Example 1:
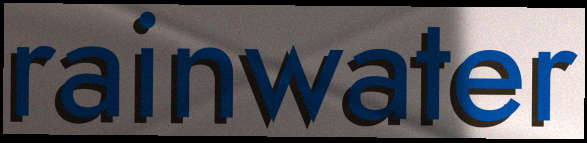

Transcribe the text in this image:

rainwater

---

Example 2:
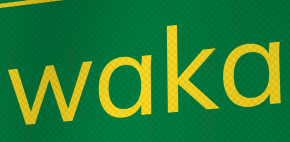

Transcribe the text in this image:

waka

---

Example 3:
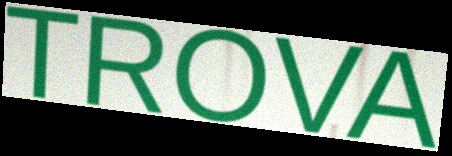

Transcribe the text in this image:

TROVA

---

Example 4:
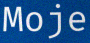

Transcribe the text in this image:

Moje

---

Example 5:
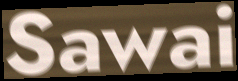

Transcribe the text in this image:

Sawai